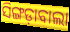
ସିଙ୍ଗଡ଼ାବାଲା